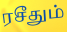
ரசீதும்